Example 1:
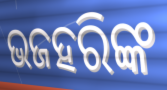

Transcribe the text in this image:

ଭଜହରିଙ୍କ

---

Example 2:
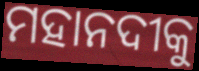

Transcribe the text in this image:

ମହାନଦୀକୁ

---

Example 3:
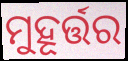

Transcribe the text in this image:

ମୁହୂର୍ତ୍ତର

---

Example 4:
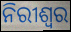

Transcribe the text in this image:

ନିରୀଶ୍ୱର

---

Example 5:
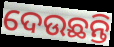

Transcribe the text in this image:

ଦେଉଛନ୍ତି